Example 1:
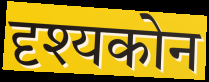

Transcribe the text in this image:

दृश्‍यकोन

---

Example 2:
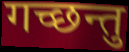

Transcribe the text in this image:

गच्छन्तु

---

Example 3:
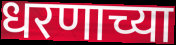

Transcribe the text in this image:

धरणाच्या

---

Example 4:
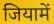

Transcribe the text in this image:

जियामें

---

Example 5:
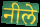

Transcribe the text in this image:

नीले